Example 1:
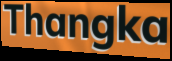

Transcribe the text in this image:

Thangka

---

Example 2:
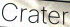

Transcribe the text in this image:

Crater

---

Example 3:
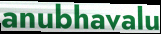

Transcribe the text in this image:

anubhavalu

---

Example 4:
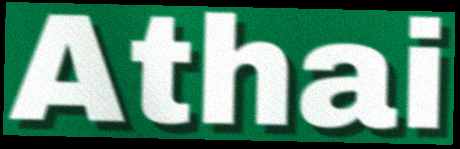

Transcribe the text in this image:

Athai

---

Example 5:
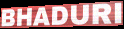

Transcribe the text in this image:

BHADURI